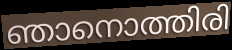
ഞാനൊത്തിരി